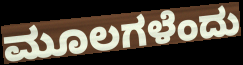
ಮೂಲಗಳೆಂದು